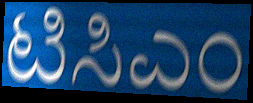
ಟಿಸಿಎಂ